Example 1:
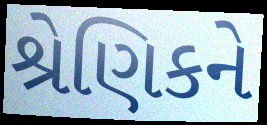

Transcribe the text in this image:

શ્રેણિકને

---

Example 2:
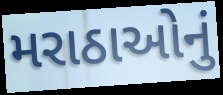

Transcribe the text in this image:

મરાઠાઓનું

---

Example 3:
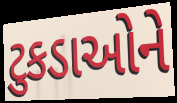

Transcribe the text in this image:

ટુકડાઓને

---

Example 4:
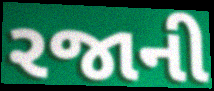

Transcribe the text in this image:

રજાની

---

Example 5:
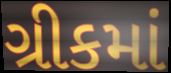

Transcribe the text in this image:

ગ્રીકમાં